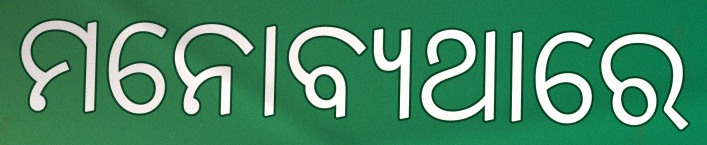
ମନୋବ୍ୟଥାରେ